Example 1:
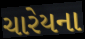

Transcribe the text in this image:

ચારેયના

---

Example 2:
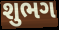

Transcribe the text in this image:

શુભગ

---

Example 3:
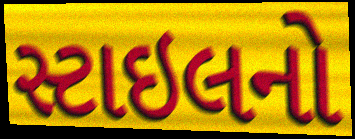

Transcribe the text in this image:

સ્ટાઇલનો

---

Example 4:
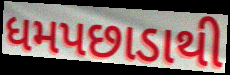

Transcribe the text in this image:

ધમપછાડાથી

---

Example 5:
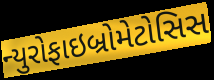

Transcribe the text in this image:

ન્યુરોફાઇબ્રોમેટોસિસ